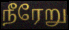
நீரேறு